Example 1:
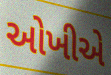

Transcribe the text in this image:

ઓખીએ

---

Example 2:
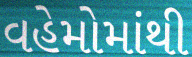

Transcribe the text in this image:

વહેમોમાંથી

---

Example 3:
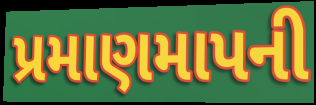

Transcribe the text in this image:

પ્રમાણમાપની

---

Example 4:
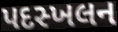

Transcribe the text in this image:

પદસ્ખલન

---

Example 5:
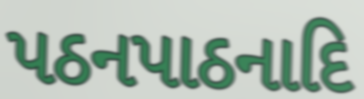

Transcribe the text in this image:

પઠનપાઠનાદિ